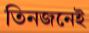
তিনজনেই